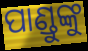
ପାଣ୍ଡୁଙ୍କୁ